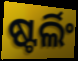
ଷ୍ଟର୍ଲିଂ